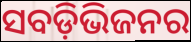
ସବଡ଼ିଭିଜନର